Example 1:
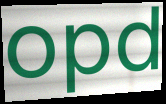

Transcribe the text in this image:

opd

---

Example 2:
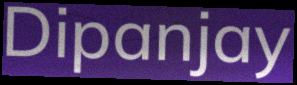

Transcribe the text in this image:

Dipanjay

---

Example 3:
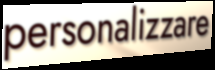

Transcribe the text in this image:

personalizzare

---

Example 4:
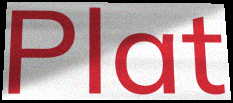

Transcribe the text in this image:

Plat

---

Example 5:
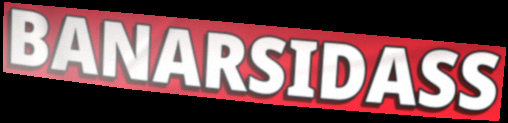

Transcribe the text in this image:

BANARSIDASS